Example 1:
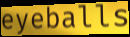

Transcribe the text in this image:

eyeballs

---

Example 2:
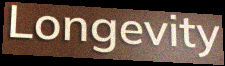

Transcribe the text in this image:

Longevity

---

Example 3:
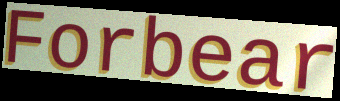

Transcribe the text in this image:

Forbear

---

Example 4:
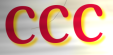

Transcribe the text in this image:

ccc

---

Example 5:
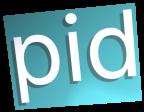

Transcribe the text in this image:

pid